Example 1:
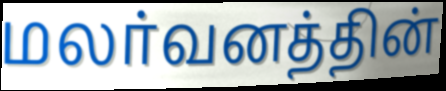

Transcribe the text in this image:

மலர்வனத்தின்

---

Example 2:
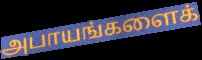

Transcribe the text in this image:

அபாயங்களைக்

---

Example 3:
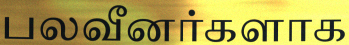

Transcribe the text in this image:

பலவீனர்களாக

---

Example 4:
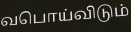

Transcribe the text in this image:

வபொய்விடும்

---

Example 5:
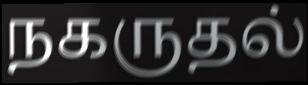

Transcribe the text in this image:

நகருதல்